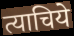
त्याचिये